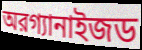
অরগ্যানাইজড